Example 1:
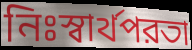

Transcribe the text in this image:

নিঃস্বার্থপরতা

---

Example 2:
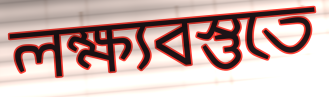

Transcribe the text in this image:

লক্ষ্যবস্তুতে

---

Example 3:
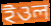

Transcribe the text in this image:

ইওল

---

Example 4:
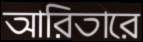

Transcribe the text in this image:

আরিতারে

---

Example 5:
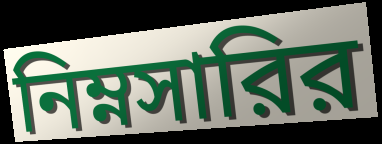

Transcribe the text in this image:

নিম্নসারির